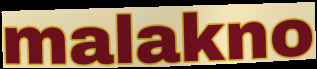
malakno